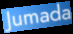
Jumada